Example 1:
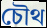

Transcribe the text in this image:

চৌথ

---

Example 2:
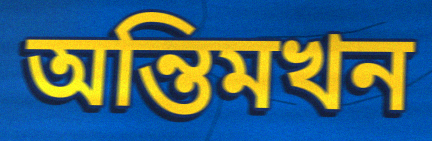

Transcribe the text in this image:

অন্তিমখন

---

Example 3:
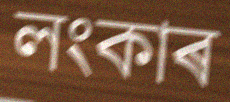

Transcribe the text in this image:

লংকাৰ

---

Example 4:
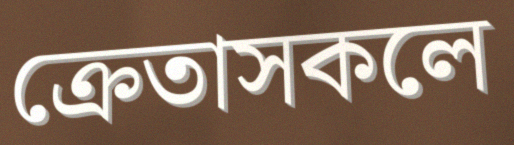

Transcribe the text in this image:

ক্ৰেতাসকলে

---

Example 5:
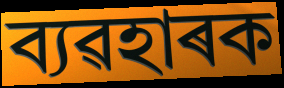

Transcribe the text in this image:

ব্যৱহাৰক